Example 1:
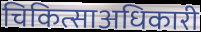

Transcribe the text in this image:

चिकित्साअधिकारी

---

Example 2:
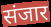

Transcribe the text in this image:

संजार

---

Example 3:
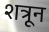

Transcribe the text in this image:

शत्रून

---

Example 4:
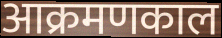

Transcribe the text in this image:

आक्रमणकाल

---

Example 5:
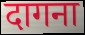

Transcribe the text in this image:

दागना